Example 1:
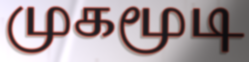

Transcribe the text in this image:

முகமூடி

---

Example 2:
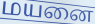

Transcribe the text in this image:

மயனை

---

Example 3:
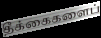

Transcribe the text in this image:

தீக்கைகளைப்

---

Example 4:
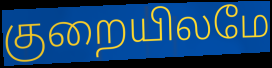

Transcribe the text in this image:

குறையிலமே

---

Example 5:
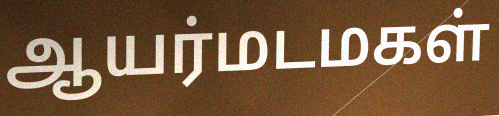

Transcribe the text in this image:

ஆயர்மடமகள்